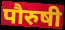
पौरुषी